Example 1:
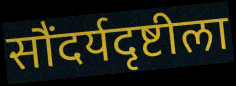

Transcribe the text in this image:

सौंदर्यदृष्टीला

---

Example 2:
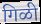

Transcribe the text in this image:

गिळी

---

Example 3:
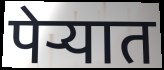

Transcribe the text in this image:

पेऱ्यात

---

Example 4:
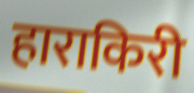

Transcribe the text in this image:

हाराकिरी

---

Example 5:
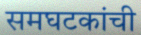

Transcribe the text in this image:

समघटकांची